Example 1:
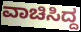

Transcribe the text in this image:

ವಾಚಿಸಿದ್ದ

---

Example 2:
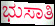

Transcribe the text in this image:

ಭುಸಾತಿ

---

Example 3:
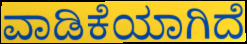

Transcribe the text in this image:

ವಾಡಿಕೆಯಾಗಿದೆ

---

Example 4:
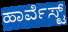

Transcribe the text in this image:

ಹಾರ್ವೆಸ್ಟ್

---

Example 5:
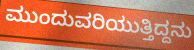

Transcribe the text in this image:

ಮುಂದುವರಿಯುತ್ತಿದ್ದನು